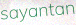
sayantan